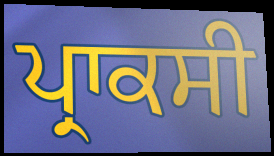
ਪ੍ਰਾਕਸੀ